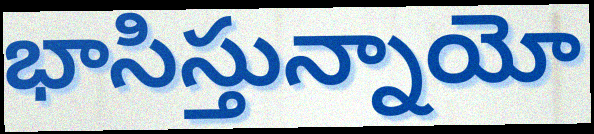
భాసిస్తున్నాయో